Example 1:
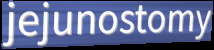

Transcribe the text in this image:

jejunostomy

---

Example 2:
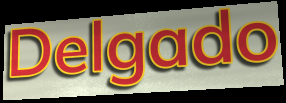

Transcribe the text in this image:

Delgado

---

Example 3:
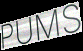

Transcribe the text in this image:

PUMS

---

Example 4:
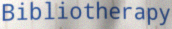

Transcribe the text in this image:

Bibliotherapy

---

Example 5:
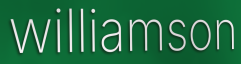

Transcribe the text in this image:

williamson